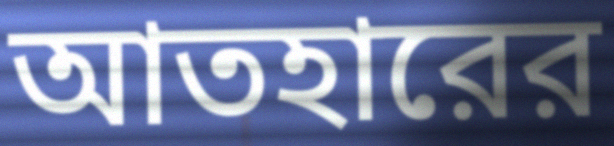
আতহারের